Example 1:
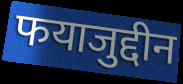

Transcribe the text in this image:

फयाजुद्दीन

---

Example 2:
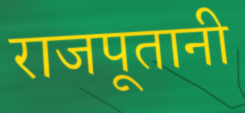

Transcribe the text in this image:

राजपूतानी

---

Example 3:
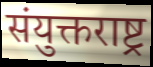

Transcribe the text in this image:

संयुक्तराष्ट्र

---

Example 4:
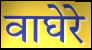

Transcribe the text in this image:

वाघेरे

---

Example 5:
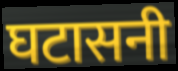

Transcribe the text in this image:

घटासनी